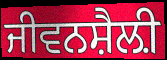
ਜੀਵਨਸ਼ੈਲ਼ੀ